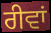
ਰੀਵਾਂ